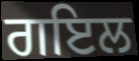
ਗਇਲ